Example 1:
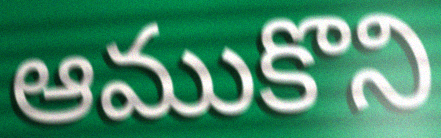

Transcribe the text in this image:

ఆముకొని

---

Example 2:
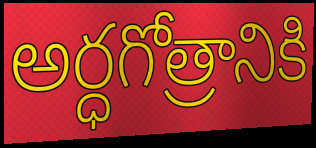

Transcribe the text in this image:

అర్ధగోత్రానికి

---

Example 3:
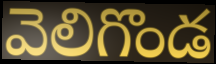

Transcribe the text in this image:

వెలిగొండ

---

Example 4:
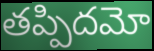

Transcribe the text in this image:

తప్పిదమో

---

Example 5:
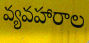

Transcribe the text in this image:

వ్యవహారాల